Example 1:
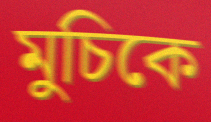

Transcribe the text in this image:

মুচিকে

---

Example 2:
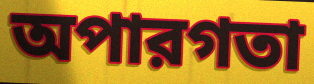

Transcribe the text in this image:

অপারগতা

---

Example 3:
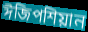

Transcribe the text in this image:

ঈজিপশিয়ান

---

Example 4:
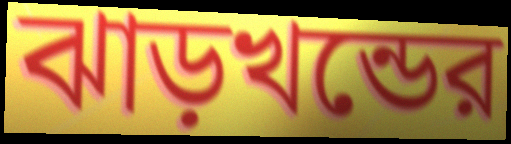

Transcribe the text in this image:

ঝাড়খন্ডের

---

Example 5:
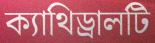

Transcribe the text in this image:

ক্যাথিড্রালটি